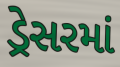
ડ્રેસરમાં